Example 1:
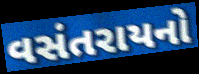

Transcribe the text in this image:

વસંતરાયનો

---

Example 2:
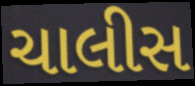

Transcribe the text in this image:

ચાલીસ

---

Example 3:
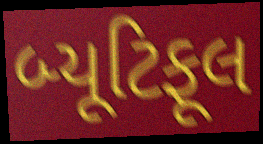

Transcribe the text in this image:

બ્યૂટિફૂલ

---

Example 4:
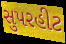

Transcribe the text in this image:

સુપરહીટ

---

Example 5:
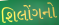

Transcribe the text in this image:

શિલોંગનો